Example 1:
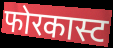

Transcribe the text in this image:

फोरकास्ट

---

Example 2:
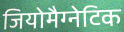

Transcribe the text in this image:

जियोमैग्नेटिक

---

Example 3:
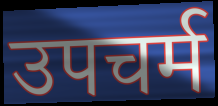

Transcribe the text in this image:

उपचर्म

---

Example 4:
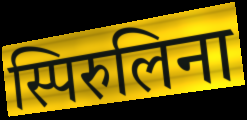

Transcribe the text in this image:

स्पिरुलिना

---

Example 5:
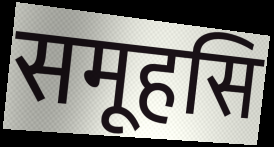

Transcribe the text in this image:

समूहसि